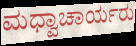
ಮಧ್ವಾಚಾರ್ಯರು